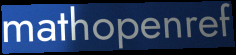
mathopenref